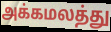
அக்கமலத்து